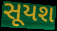
સૂયશ